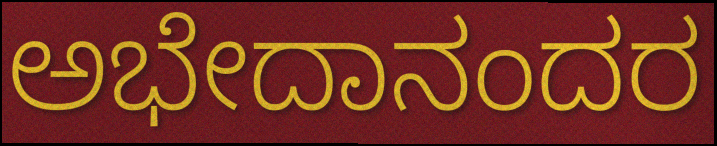
ಅಭೇದಾನಂದರ